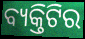
ବ୍ୟକ୍ତିଟିର